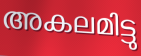
അകലമിട്ടു